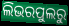
ଲିଭରପୁଲରୁ